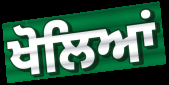
ਖੋਲਿਆਂ